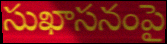
సుఖాసనంపై